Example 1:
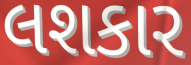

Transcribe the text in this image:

લશકાર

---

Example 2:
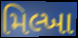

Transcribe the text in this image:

મિલ્ખા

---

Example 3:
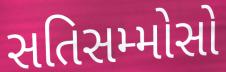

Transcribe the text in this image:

સતિસમ્મોસો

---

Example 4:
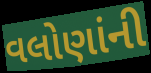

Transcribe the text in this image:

વલોણાંની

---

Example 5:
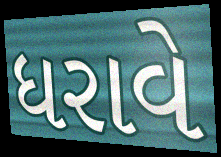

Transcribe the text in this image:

ધરાવે